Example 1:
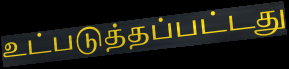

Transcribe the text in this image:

உட்படுத்தப்பட்டது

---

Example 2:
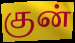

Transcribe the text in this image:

குன்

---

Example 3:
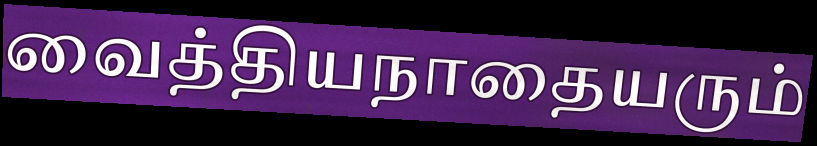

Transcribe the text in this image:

வைத்தியநாதையரும்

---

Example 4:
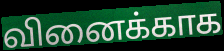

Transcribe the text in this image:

வினைக்காக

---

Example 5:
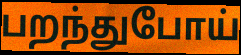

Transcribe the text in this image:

பறந்துபோய்